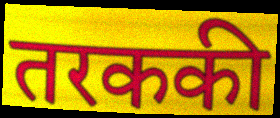
तरककी